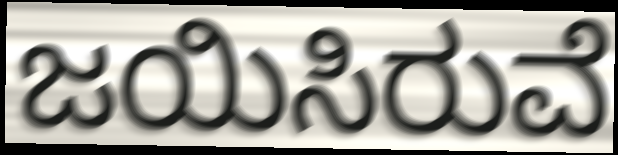
ಜಯಿಸಿರುವೆ